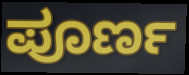
ಪೂರ್ಣ